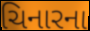
ચિનારના